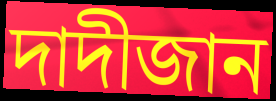
দাদীজান